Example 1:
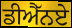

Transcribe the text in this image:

ਡੀਐੱਨਏ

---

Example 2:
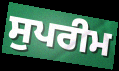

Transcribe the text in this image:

ਸੁਪਰੀਮ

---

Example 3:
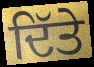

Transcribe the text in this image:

ਦਿੱਤੇ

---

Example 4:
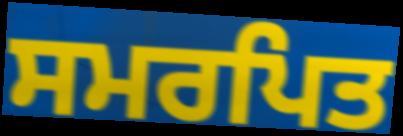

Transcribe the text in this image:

ਸਮਰਪਿਤ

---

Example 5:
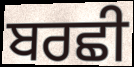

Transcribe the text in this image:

ਬਰਛੀ